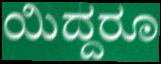
ಯಿದ್ದರೂ